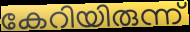
കേറിയിരുന്ന്